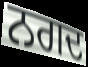
ਨਗਦ